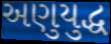
અણુયુદ્ધ